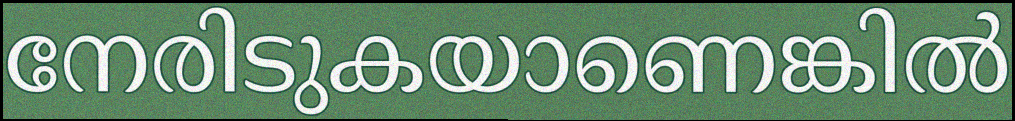
നേരിടുകയാണെങ്കിൽ